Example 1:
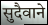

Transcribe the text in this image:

सुदैवाने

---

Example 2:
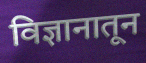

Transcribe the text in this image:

विज्ञानातून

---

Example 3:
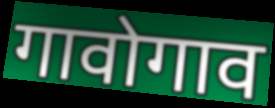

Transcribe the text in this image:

गावोगाव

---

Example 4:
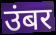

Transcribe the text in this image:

उंबर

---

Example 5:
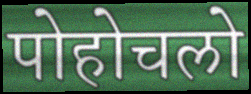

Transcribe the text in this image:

पोहोचलो